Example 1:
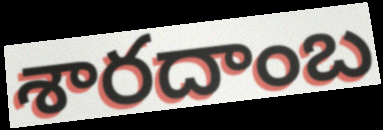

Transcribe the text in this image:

శారదాంబ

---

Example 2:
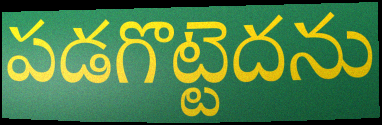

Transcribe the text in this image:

పడగొట్టెదను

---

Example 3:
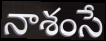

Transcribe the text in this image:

నాశంసే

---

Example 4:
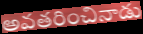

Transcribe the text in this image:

అవతరించినాడు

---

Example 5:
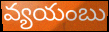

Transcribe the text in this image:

వ్యయంబు